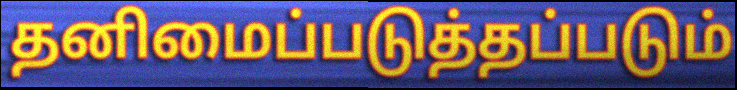
தனிமைப்படுத்தப்படும்